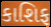
કાશિફ